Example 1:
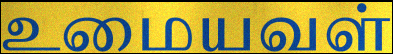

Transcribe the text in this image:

உமையவள்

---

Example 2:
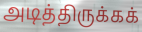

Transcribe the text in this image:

அடித்திருக்கக்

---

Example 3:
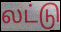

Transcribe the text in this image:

லட்டு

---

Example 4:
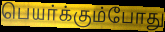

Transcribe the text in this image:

பெயர்க்கும்போது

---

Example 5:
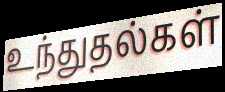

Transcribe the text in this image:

உந்துதல்கள்